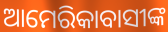
ଆମେରିକାବାସୀଙ୍କ